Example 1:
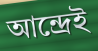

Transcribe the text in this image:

আন্দ্রেই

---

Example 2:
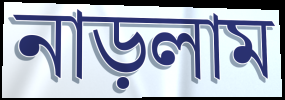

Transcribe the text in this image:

নাড়লাম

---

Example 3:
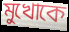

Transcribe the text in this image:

মুখোকে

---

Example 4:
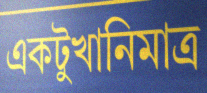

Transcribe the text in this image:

একটুখানিমাত্র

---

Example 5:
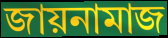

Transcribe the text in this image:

জায়নামাজ